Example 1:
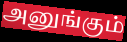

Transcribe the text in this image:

அனுங்கும்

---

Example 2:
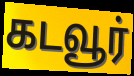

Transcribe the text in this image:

கடவூர்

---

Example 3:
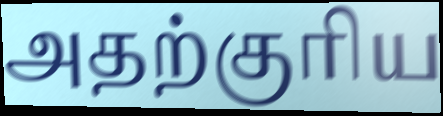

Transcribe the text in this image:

அதற்குரிய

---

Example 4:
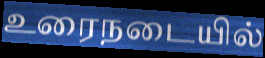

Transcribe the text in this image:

உரைநடையில்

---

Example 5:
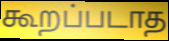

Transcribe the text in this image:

கூறப்படாத